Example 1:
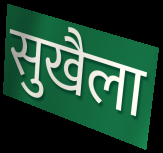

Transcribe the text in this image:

सुखैला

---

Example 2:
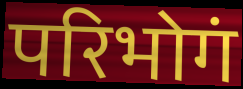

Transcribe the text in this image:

परिभोगं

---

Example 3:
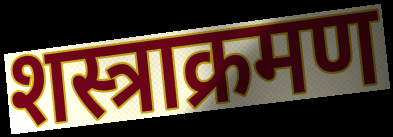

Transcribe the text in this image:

शस्त्राक्रमण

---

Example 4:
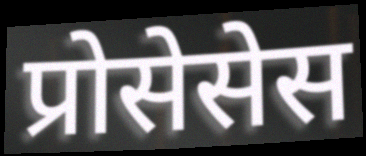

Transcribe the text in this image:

प्रोसेसेस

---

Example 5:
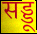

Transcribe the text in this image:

सड्डू